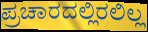
ಪ್ರಚಾರದಲ್ಲಿರಲಿಲ್ಲ